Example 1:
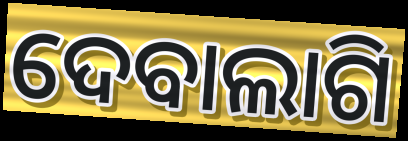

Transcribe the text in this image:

ଦେବାଲାଗି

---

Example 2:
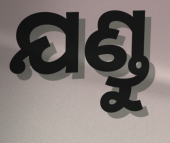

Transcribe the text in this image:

ଯଣ୍ଡୁ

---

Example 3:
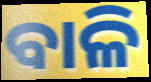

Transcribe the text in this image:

ବାଳି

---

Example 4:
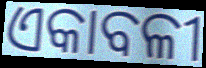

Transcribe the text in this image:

ଏକାବଳୀ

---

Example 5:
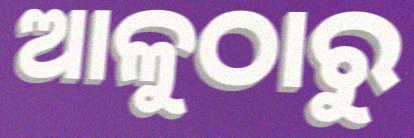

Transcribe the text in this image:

ଆଳୁଠାରୁ